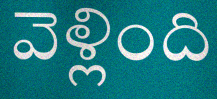
వెళ్లింది